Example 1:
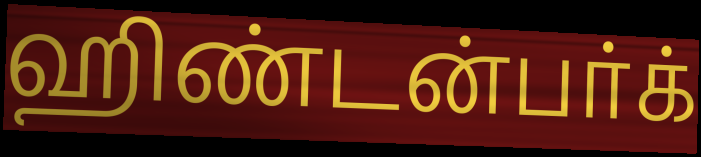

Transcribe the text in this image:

ஹிண்டன்பர்க்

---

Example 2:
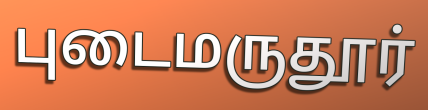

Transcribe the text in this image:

புடைமருதூர்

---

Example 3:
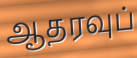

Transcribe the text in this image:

ஆதரவுப்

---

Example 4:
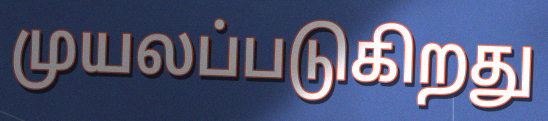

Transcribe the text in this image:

முயலப்படுகிறது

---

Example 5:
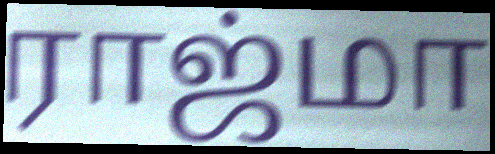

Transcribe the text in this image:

ராஜ்மா